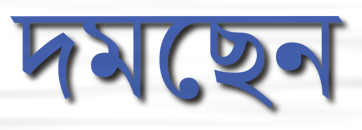
দমছেন